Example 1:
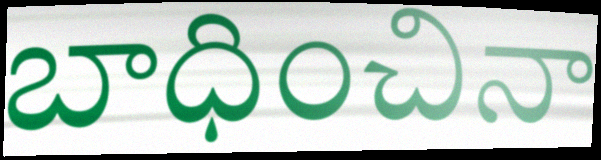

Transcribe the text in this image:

బాధించినా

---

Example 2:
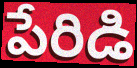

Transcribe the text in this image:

పేరిడి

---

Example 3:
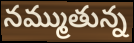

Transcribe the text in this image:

నమ్ముతున్న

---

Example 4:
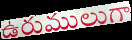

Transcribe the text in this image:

ఉరుములుగా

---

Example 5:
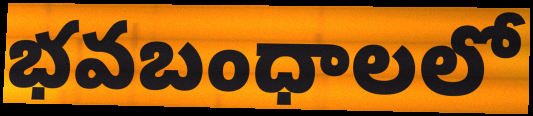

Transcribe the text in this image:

భవబంధాలలో